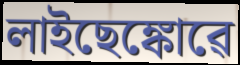
লাইছেঙ্কোৱে